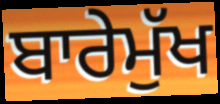
ਬਾਰੇਮੁੱਖ